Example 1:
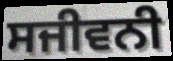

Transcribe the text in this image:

ਸਜੀਵਨੀ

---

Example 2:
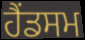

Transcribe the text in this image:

ਹੈਂਡਸਮ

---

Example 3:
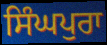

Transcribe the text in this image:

ਸਿੰਘਪੁਰਾ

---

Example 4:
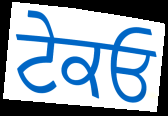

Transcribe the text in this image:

ਟੇਕਓ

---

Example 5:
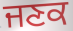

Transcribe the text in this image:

ਜਣਕ